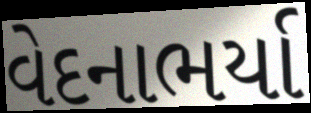
વેદનાભર્યા